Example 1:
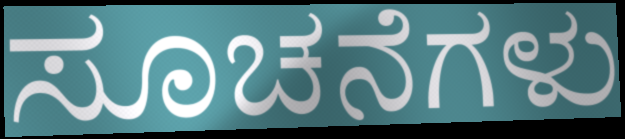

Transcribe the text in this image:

ಸೂಚನೆಗಳು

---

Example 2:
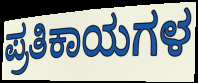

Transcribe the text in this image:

ಪ್ರತಿಕಾಯಗಳ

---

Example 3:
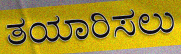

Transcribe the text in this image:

ತಯಾರಿಸಲು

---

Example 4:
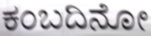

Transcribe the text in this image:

ಕಂಬದಿನೋ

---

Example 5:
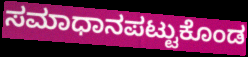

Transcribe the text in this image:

ಸಮಾಧಾನಪಟ್ಟುಕೊಂಡ